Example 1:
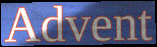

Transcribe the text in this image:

Advent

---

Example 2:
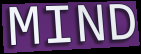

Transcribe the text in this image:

MIND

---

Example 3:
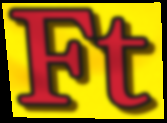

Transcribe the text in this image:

Ft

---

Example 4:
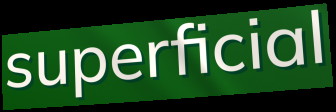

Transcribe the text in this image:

superficial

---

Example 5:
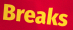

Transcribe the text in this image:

Breaks